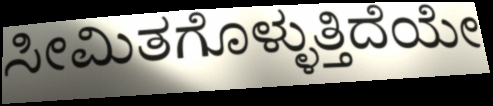
ಸೀಮಿತಗೊಳ್ಳುತ್ತಿದೆಯೇ